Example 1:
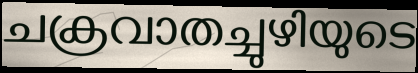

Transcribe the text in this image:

ചക്രവാതച്ചുഴിയുടെ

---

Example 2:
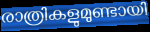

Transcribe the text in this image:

രാത്രികളുമുണ്ടായി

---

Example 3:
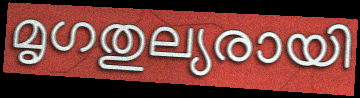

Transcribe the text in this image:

മൃഗതുല്യരായി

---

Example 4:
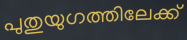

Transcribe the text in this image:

പുതുയുഗത്തിലേക്ക്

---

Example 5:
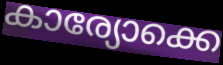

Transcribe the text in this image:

കാര്യോക്കെ